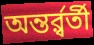
অন্তর্র্বর্তী